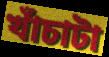
খাঁচাটা